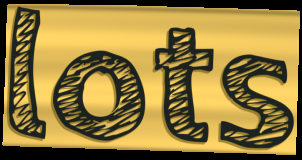
lots